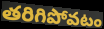
తరిగిపోవటం